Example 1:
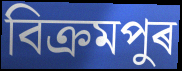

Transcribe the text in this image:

বিক্ৰমপুৰ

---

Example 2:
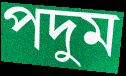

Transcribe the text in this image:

পদুম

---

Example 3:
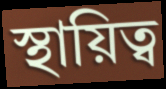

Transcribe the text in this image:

স্থায়িত্ব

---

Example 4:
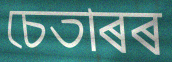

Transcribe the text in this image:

চেতাৰৰ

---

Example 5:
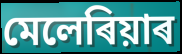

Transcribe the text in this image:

মেলেৰিয়াৰ